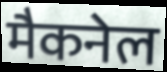
मैकनेल